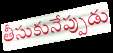
తీసుకునేప్పుడు